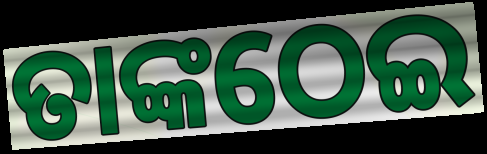
ତାଙ୍କଠେଇ